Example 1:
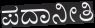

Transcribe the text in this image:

ಪದಾನೀತಿ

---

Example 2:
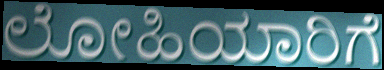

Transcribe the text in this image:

ಲೋಹಿಯಾರಿಗೆ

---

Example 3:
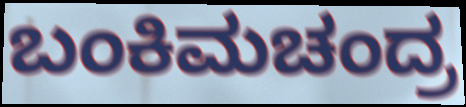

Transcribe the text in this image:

ಬಂಕಿಮಚಂದ್ರ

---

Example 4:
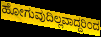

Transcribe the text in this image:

ಹೋಗುವುದಿಲ್ಲವಾದ್ದರಿಂದ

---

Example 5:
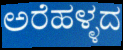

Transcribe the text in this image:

ಅರೆಹಳ್ಳದ